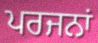
ਪਰਜਨਾਂ